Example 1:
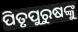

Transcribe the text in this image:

ପିତୃପୁରୁଷଙ୍କୁ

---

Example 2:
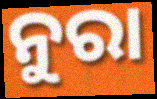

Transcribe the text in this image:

ନୁରା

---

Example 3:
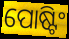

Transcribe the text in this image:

ପୋଷ୍ଟିଂ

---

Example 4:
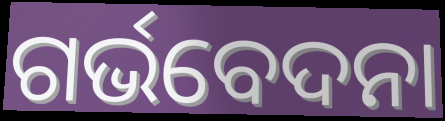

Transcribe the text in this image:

ଗର୍ଭବେଦନା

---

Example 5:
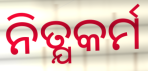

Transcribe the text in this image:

ନିତ୍ଯକର୍ମ